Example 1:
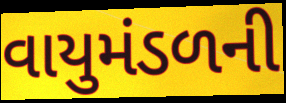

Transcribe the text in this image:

વાયુમંડળની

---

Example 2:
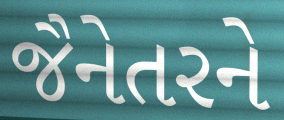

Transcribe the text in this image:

જૈનેતરને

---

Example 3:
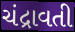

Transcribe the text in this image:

ચંદ્રાવતી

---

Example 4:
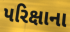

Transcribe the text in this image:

પરિક્ષાના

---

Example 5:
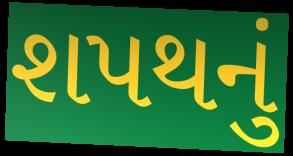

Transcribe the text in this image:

શપથનું